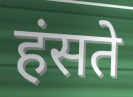
हंसते